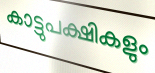
കാട്ടുപക്ഷികളും